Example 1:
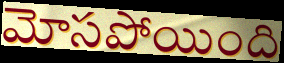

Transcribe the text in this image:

మోసపోయింది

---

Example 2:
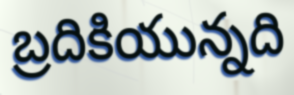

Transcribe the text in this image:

బ్రదికియున్నది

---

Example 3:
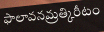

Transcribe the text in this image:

ఫాలావనమ్రత్కిరీటం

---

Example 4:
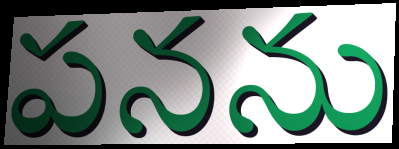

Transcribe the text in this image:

పనను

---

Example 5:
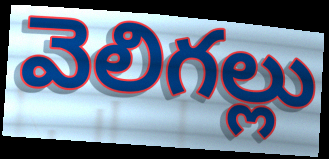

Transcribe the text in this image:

వెలిగల్లు